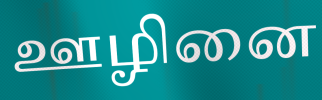
ஊழினை